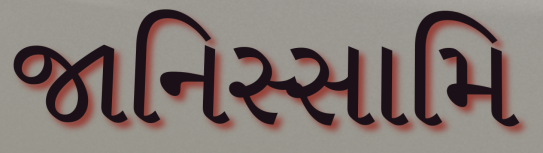
જાનિસ્સામિ